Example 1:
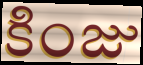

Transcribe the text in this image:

కింజు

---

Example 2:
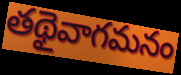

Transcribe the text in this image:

తథైవాగమనం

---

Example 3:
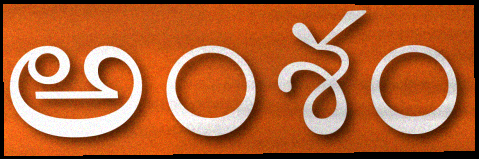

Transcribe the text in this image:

అంశం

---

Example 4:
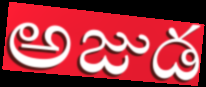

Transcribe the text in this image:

అజుడ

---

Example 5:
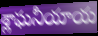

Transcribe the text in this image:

శ్లాఘనీయాయ